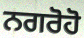
ਨਗਰੋਹੋ